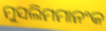
ମୁସଲିମମାନଂକ